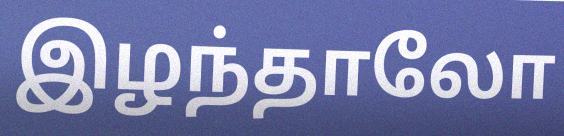
இழந்தாலோ